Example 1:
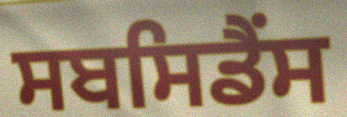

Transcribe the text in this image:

ਸਬਸਿਡੈਂਸ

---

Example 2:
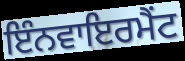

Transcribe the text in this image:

ਇੰਨਵਾਇਰਮੈਂਟ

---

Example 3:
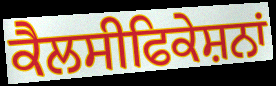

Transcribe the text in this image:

ਕੈਲਸੀਫਿਕੇਸ਼ਨਾਂ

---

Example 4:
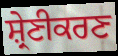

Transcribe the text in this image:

ਸ਼੍ਰੇਣੀਕਰਣ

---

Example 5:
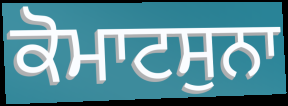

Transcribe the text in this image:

ਕੋਮਾਟਸੁਨਾ